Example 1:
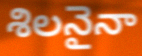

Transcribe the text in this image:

శిలనైనా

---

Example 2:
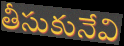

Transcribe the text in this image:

తీసుకునేవి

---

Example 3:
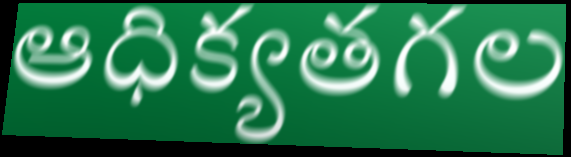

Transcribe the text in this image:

ఆధిక్యతగల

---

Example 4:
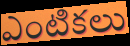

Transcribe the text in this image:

ఎంటికలు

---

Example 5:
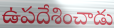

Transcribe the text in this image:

ఉపదేశించాడు